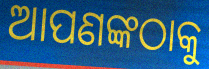
ଆପଣଙ୍କଠାକୁ